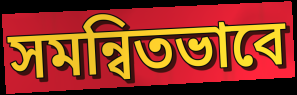
সমন্বিতভাবে